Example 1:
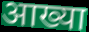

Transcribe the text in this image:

आख्या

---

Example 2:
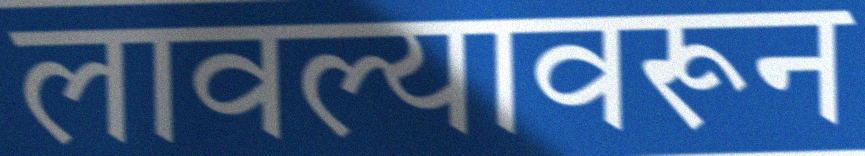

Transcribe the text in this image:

लावल्यावरून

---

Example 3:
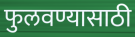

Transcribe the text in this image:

फुलवण्यासाठी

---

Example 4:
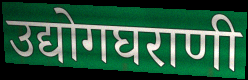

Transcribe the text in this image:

उद्योगघराणी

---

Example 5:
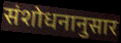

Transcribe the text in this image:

संशोधनानुसार